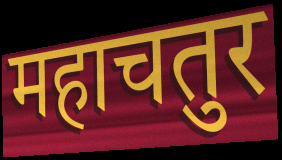
महाचतुर